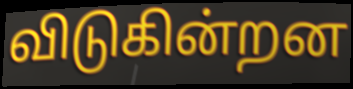
விடுகின்றன